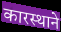
कारस्थाने